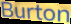
Burton